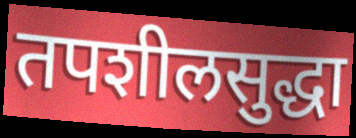
तपशीलसुद्धा